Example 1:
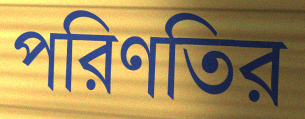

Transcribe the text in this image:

পরিণতির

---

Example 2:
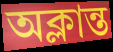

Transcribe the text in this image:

অক্লান্ত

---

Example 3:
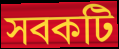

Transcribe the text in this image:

সবকটি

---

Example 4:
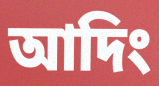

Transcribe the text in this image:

আদিং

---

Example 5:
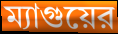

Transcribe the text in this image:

ম্যাগুয়ের